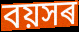
বয়সৰ